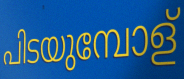
പിടയുമ്പോള്